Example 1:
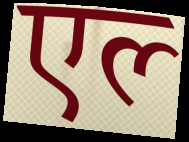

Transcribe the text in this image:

एल्‍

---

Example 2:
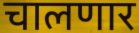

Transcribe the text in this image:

चालणार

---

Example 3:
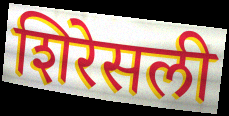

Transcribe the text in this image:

शिरेसली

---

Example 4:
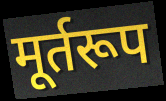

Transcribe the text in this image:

मूर्तरूप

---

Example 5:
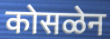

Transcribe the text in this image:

कोसळेन